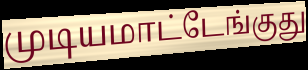
முடியமாட்டேங்குது